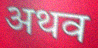
अथव